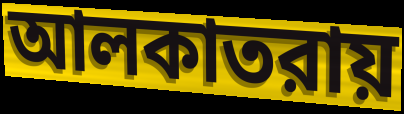
আলকাতরায়